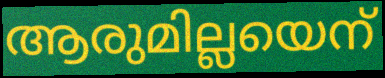
ആരുമില്ലയെന്